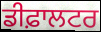
ਡੀਫ਼ਾਲਟਰ